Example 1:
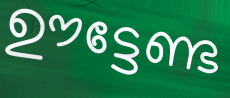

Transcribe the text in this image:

ഊട്ടേണ്ട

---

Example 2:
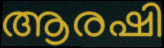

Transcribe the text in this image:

ആരഷി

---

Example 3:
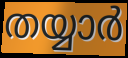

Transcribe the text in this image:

തയ്യാർ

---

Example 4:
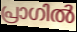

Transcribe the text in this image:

പ്രാഗിൽ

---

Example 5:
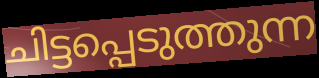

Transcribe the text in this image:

ചിട്ടപ്പെടുത്തുന്ന